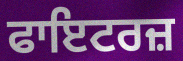
ਫਾਇਟਰਜ਼